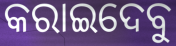
କରାଇଦେବୁ